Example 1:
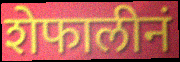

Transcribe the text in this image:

शेफालीनं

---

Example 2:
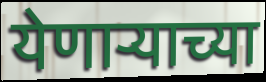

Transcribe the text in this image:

येणाऱ्याच्या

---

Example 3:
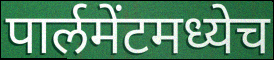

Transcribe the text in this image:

पार्लमेंटमध्येच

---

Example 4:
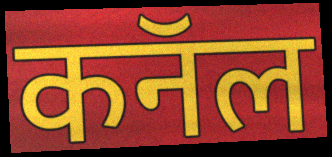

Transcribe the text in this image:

कनॅल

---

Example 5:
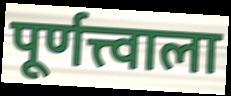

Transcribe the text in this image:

पूर्णत्त्वाला